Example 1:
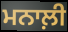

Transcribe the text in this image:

ਮਨਾਲ਼ੀ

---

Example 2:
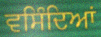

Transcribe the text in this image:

ਵਸਿੰਦਿਆਂ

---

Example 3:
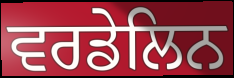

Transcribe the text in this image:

ਵਰਡੇਲਿਨ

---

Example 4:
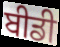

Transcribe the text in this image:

ਬੀਡੀ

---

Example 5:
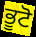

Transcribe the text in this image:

ਭੂਟੋ